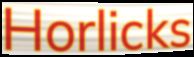
Horlicks